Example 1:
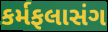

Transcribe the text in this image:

કર્મફલાસંગ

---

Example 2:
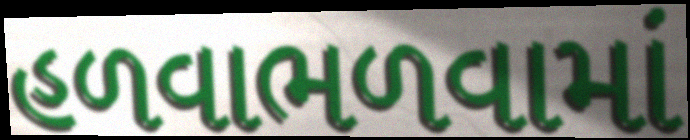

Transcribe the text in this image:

હળવાભળવામાં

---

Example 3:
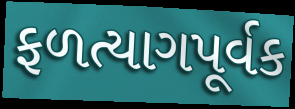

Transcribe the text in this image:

ફળત્યાગપૂર્વક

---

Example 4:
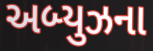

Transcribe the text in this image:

અબ્યુઝના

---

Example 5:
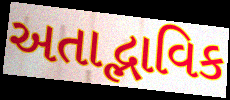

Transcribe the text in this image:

અતાદ્ભાવિક